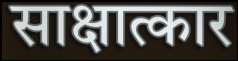
साक्षात्कार